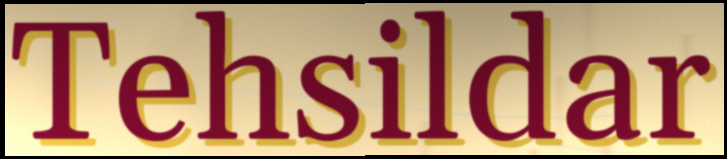
Tehsildar